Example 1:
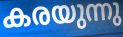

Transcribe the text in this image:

കരയുന്നു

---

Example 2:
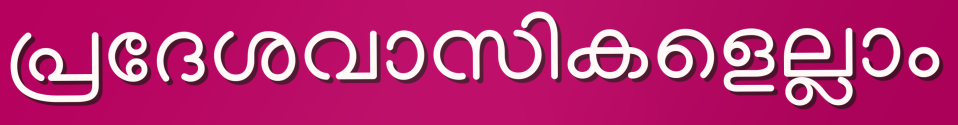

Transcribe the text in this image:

പ്രദേശവാസികളെല്ലാം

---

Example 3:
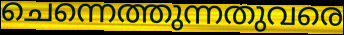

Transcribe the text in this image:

ചെന്നെത്തുന്നതുവരെ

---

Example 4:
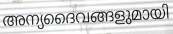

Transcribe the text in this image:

അന്യദൈവങ്ങളുമായി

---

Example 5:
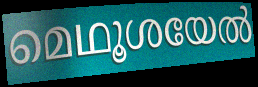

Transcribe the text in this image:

മെഥൂശയേൽ